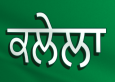
ਕਲੇਲਾ